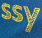
ssy